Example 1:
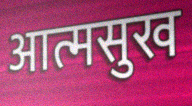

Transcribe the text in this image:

आत्मसुख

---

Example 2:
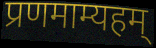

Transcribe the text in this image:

प्रणमाम्यहम्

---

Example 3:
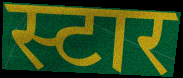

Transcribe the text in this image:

स्‍टार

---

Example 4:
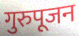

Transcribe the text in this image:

गुरुपूजन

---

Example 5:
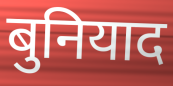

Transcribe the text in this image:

बुनियाद